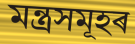
মন্ত্ৰসমূহৰ